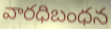
వారధిబంధన